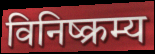
विनिष्क्रम्य